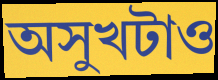
অসুখটাও